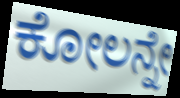
ಕೋಲನ್ನೇ